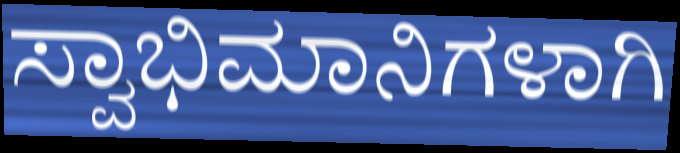
ಸ್ವಾಭಿಮಾನಿಗಳಾಗಿ